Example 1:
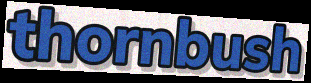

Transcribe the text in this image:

thornbush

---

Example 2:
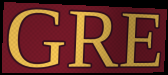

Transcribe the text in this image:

GRE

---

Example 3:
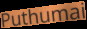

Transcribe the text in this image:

Puthumai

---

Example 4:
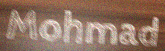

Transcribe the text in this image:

Mohmad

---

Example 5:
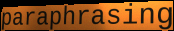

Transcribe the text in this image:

paraphrasing